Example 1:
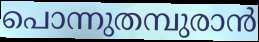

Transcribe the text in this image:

പൊന്നുതമ്പുരാൻ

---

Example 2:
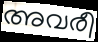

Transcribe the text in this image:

അവരീ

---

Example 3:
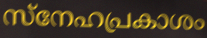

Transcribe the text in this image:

സ്നേഹപ്രകാശം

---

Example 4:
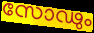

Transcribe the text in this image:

സോഢും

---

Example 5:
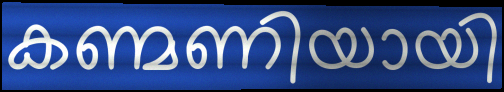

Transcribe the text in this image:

കണ്മണിയായി